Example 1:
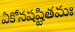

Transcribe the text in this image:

ఏకోనషష్టితమః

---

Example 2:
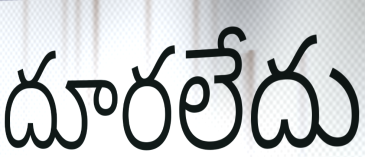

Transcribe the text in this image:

దూరలేదు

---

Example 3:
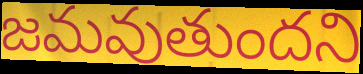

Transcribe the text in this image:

జమవుతుందని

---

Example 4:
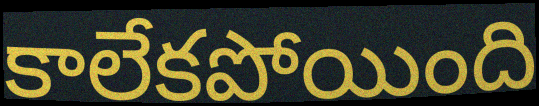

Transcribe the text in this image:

కాలేకపోయింది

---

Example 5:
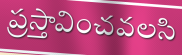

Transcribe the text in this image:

ప్రస్తావించవలసి